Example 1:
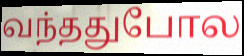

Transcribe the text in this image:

வந்ததுபோல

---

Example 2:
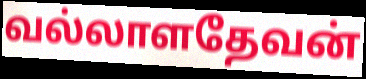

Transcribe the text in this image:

வல்லாளதேவன்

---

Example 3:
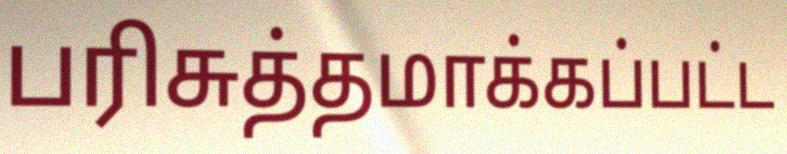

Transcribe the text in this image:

பரிசுத்தமாக்கப்பட்ட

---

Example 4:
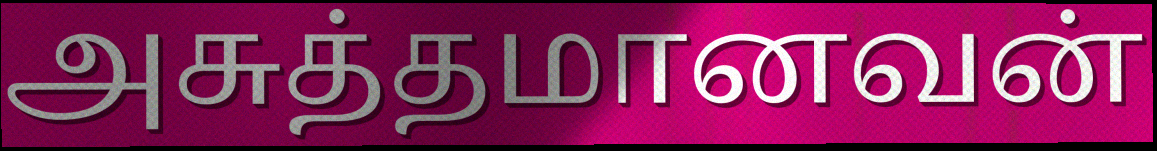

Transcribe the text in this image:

அசுத்தமானவன்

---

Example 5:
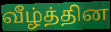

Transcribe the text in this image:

வீழ்த்தின